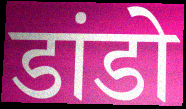
डांडो